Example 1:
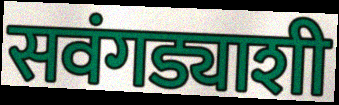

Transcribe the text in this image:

सवंगड्याशी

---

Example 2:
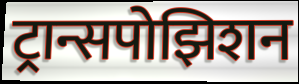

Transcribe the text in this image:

ट्रान्सपोझिशन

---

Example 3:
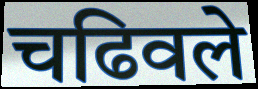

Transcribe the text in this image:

चढिवले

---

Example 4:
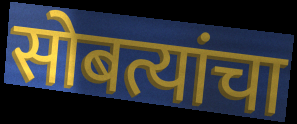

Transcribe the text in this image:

सोबत्यांचा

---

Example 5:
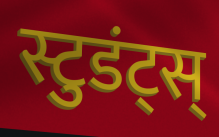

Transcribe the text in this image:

स्टुडंट्स्